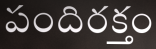
పందిరక్తం